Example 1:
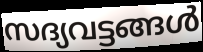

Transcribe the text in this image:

സദ്യവട്ടങ്ങൾ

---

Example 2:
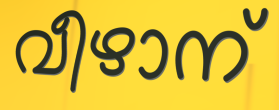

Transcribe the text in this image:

വീഴാന്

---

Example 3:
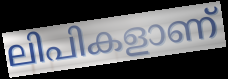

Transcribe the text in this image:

ലിപികളാണ്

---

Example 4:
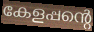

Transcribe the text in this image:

കേളപ്പന്റെ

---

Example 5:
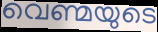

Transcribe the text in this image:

വെണ്മയുടെ